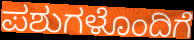
ಪಶುಗಳೊಂದಿಗೆ